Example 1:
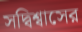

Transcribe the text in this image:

সদ্বিশ্বাসের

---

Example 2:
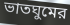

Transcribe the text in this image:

ভাতঘুমের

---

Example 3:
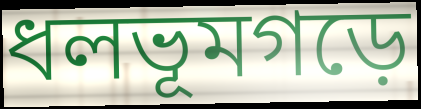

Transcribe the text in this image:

ধলভূমগড়ে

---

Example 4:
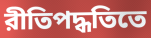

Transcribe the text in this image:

রীতিপদ্ধতিতে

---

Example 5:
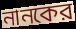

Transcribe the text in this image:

নানকের